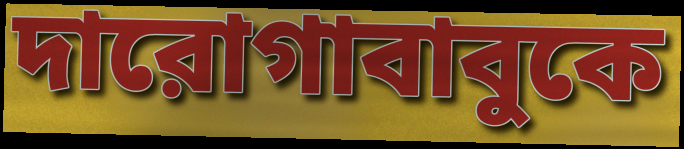
দারোগাবাবুকে